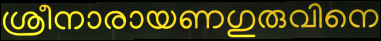
ശ്രീനാരായണഗുരുവിനെ